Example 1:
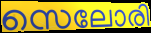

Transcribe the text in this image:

സെലോരി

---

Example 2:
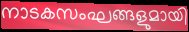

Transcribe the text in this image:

നാടകസംഘങ്ങളുമായി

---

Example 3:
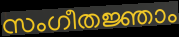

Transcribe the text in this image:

സംഗീതജ്ഞാം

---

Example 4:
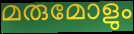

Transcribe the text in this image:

മരുമോളും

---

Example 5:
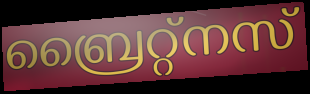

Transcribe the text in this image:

ബ്രൈറ്റ്നസ്